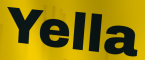
Yella